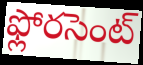
ఫ్లోరసెంట్